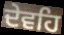
ਦੇਵਹਿ